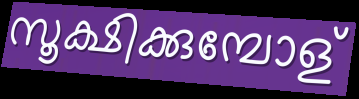
സൂക്ഷിക്കുമ്പോള്